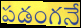
పడంగనే